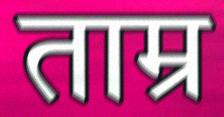
ताम्र